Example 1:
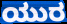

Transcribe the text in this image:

ಯುರ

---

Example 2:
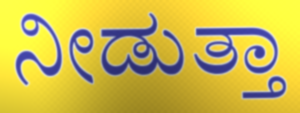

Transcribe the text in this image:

ನೀಡುತ್ತಾ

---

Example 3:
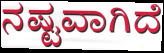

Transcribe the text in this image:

ನಷ್ಟವಾಗಿದೆ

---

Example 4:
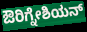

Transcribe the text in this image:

ಔರಿಗ್ನೇಶಿಯನ್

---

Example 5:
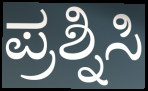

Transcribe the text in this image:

ಪ್ರಶ್ನಿಸಿ